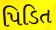
પિડિત